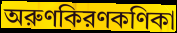
অরুণকিরণকণিকা